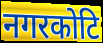
नगरकोटि